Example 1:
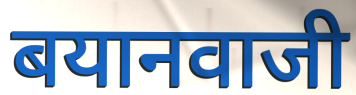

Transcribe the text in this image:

बयानवाजी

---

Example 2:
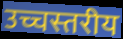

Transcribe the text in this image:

उच्चस्तरीय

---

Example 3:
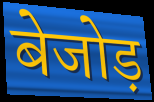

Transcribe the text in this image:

बेजोड़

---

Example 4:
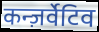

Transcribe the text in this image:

कन्ज़र्वेटिव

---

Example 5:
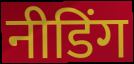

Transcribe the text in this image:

नीडिंग